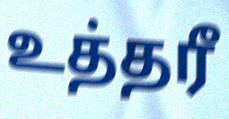
உத்தரீ